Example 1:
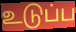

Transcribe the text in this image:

உடுப்ப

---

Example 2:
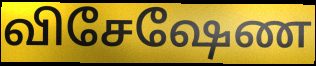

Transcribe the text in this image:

விசேஷேண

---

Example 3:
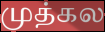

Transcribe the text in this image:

முத்கல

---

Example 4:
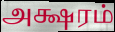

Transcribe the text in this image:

அக்ஷரம்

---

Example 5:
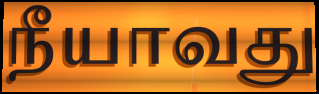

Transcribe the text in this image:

நீயாவது